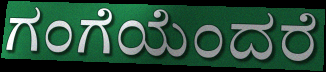
ಗಂಗೆಯೆಂದರೆ